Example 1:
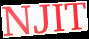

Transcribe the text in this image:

NJIT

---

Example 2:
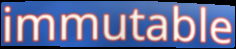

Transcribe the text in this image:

immutable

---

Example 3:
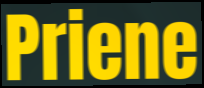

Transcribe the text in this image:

Priene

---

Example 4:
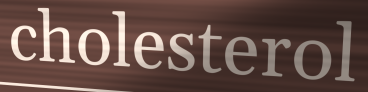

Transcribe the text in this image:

cholesterol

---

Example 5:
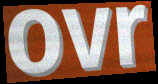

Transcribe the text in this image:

ovr